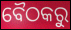
ବୈଠକରୁ